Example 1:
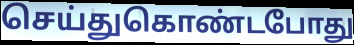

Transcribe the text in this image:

செய்துகொண்டபோது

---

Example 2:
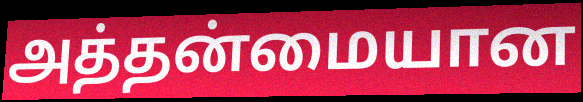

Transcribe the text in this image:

அத்தன்மையான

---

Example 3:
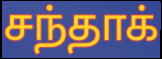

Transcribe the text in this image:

சந்தாக்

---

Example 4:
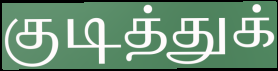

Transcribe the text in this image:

குடித்துக்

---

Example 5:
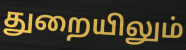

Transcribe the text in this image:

துறையிலும்